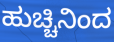
ಹುಚ್ಚಿನಿಂದ